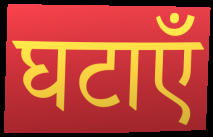
घटाएँ